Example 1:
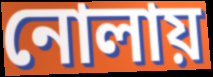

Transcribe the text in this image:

নোলায়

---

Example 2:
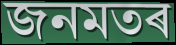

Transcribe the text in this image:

জনমতৰ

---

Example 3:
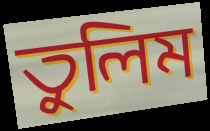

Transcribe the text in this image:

তুলিম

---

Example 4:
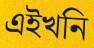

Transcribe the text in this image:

এইখনি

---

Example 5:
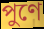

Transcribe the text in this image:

পুণে